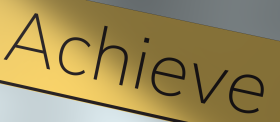
Achieve